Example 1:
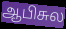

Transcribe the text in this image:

ஆபிசுல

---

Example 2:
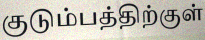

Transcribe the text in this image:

குடும்பத்திற்குள்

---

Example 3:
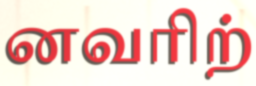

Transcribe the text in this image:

னவரிற்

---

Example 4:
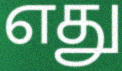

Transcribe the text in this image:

எது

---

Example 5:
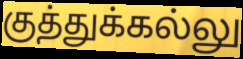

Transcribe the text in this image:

குத்துக்கல்லு